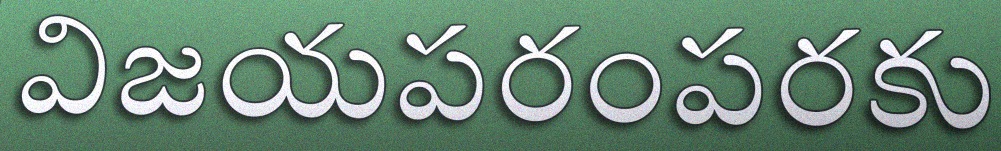
విజయపరంపరకు